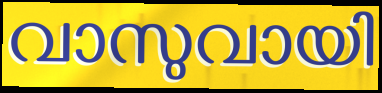
വാസുവായി